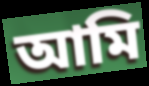
আমি